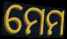
ମେମ